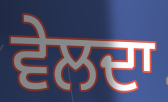
ਵੇਲਦਾ